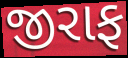
જીરાફ